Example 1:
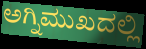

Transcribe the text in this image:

ಅಗ್ನಿಮುಖದಲ್ಲಿ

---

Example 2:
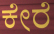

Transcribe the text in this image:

ಕೇರೆ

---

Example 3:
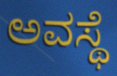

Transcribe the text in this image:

ಅವಸ್ಥೆ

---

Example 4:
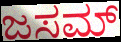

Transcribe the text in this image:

ಜಸಮ್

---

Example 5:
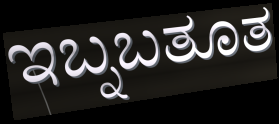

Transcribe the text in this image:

ಇಬ್ನಬತೂತ